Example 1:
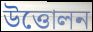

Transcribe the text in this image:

উত্তোলন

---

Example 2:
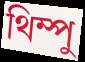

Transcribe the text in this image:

থিম্পু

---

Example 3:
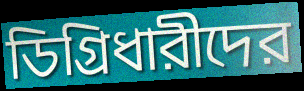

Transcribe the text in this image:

ডিগ্রিধারীদের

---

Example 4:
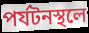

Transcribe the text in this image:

পর্যটনস্থলে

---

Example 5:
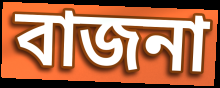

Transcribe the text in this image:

বাজনা